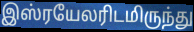
இஸ்ரயேலரிடமிருந்து